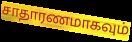
சாதாரணமாகவும்